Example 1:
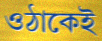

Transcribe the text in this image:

ওঠাকেই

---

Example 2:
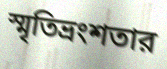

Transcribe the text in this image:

স্মৃতিভ্রংশতার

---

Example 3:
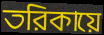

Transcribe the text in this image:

তরিকায়ে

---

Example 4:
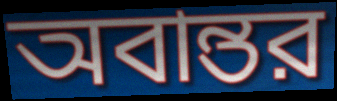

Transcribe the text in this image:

অবান্তর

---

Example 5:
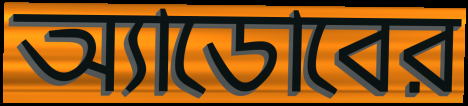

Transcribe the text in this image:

অ্যাডোবের